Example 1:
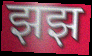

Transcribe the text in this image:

झझ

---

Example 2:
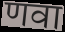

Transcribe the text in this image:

णवा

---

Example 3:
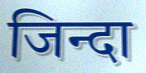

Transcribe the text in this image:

जिन्‍दा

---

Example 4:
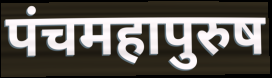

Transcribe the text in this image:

पंचमहापुरुष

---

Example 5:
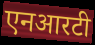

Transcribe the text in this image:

एनआरटी